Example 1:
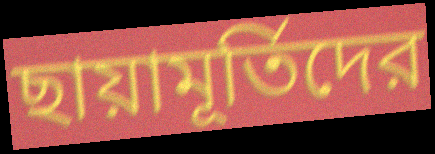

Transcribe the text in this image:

ছায়ামূর্তিদের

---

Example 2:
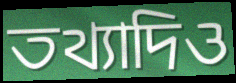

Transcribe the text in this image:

তথ্যাদিও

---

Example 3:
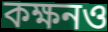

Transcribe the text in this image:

কক্ষনও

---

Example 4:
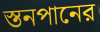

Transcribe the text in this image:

স্তনপানের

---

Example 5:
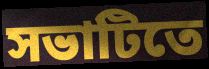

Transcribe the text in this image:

সভাটিতে